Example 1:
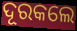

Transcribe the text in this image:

ଦୂରକଲେ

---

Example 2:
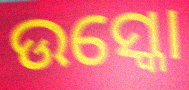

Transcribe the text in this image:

ଉସ୍କୋ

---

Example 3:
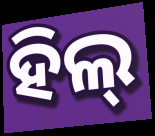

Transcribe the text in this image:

ହିଲ୍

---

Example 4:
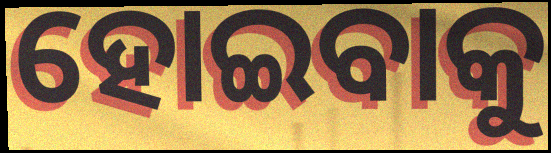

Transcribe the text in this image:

ହୋଇବାକୁ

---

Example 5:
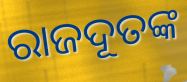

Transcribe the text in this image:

ରାଜଦୂତଙ୍କ